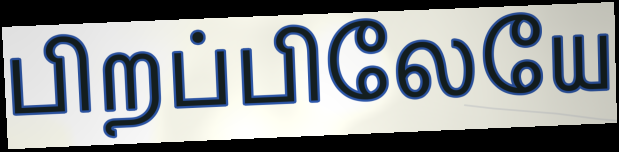
பிறப்பிலேயே